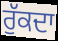
ਰੁੱਕਦਾ